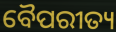
ବୈପରୀତ୍ୟ